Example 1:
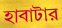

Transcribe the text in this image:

হাবাটার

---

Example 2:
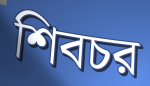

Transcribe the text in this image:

শিবচর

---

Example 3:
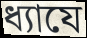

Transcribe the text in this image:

ধ্যাযে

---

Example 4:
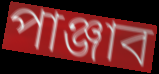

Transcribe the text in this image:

পাঞ্জাব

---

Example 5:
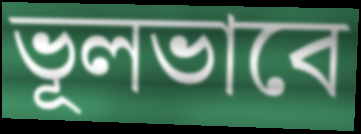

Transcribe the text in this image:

ভূলভাবে